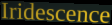
Iridescence